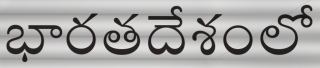
భారతదేశంలో